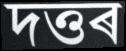
দত্তৰ